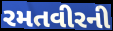
રમતવીરની